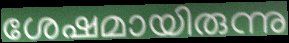
ശേഷമായിരുന്നു